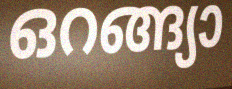
ഒറങ്ങ്യാ